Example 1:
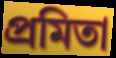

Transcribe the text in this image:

প্রমিতা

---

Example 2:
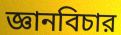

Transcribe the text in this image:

জ্ঞানবিচার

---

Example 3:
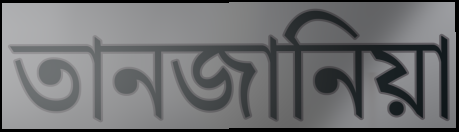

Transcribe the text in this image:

তানজানিয়া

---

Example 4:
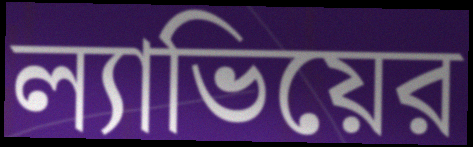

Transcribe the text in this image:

ল্যাভিয়ের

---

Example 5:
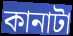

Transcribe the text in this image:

কানাটা